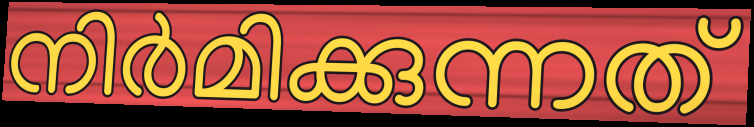
നിർമിക്കുന്നത്